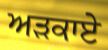
ਅੜਕਾਏ